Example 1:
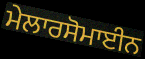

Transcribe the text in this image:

ਮੇਲਾਰਸੋਮਾਈਨ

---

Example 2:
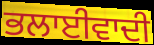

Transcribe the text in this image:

ਭਲਾਈਵਾਦੀ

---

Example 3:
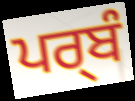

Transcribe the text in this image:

ਪਰ੍ਬੰ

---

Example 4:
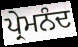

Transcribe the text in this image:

ਪ੍ਰੇਮਨੰਦ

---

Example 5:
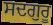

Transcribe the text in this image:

ਸਦਗੁਰੂ